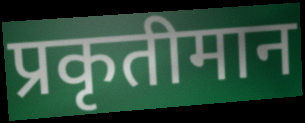
प्रकृतीमान